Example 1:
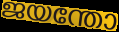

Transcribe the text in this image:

ജയന്തോ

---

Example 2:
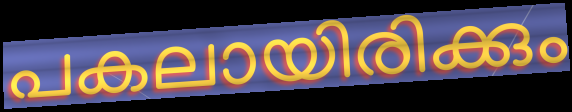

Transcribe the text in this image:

പകലായിരിക്കും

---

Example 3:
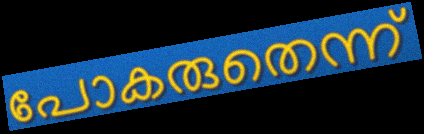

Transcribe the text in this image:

പോകരുതെന്ന്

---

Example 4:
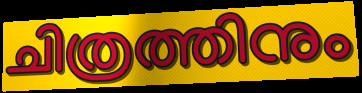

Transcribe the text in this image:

ചിത്രത്തിനും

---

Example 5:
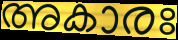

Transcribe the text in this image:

അകാരഃ